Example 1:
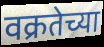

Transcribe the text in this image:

वक्रतेच्या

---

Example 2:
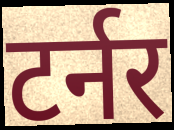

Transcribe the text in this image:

टर्नर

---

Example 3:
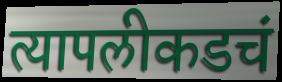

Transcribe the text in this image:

त्यापलीकडचं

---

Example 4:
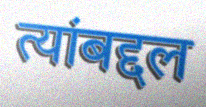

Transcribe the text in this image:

त्यांबद्दल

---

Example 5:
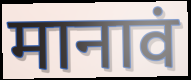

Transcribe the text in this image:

मानावं